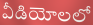
వీడియోలలో